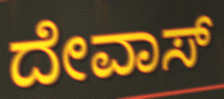
ದೇವಾಸ್